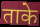
ताके